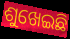
ଶୁଖେଇଛି